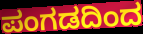
ಪಂಗಡದಿಂದ